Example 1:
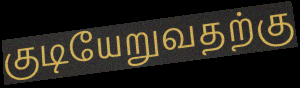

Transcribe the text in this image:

குடியேறுவதற்கு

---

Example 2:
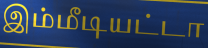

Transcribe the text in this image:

இம்மீடியட்டா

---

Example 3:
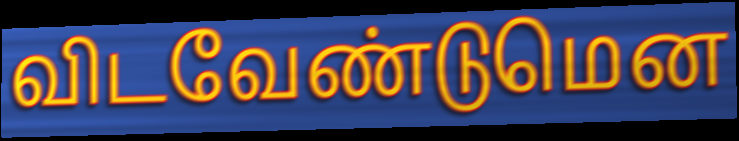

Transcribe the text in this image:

விடவேண்டுமென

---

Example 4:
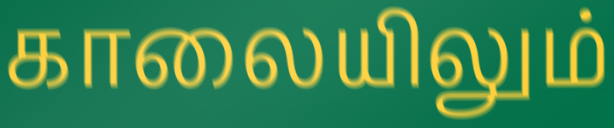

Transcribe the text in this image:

காலையிலும்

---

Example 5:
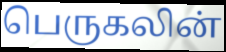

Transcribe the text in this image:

பெருகலின்